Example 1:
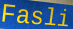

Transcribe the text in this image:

Fasli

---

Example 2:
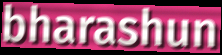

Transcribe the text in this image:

bharashun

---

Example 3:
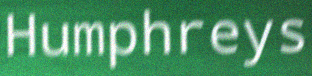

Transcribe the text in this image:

Humphreys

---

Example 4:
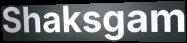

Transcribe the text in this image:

Shaksgam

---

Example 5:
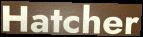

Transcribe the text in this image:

Hatcher